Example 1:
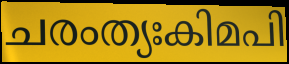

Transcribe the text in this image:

ചരംത്യഃകിമപി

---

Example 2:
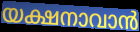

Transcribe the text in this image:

യക്ഷനാവാൻ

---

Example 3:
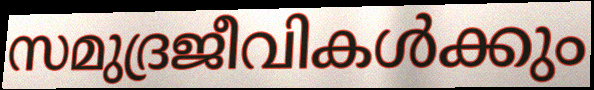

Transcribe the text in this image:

സമുദ്രജീവികൾക്കും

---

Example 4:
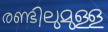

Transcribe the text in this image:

രണ്ടിലുമുള്ള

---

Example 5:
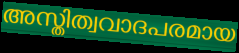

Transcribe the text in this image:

അസ്തിത്വവാദപരമായ